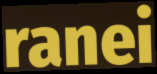
ranei